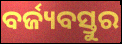
ବର୍ଜ୍ୟବସ୍ତୁର